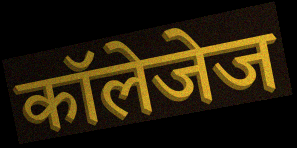
कॉलेजेज